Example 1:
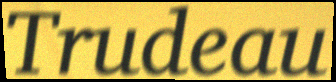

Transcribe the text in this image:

Trudeau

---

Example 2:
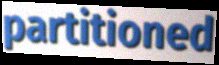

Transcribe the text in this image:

partitioned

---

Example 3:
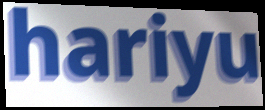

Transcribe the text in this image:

hariyu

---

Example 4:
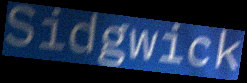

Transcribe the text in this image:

Sidgwick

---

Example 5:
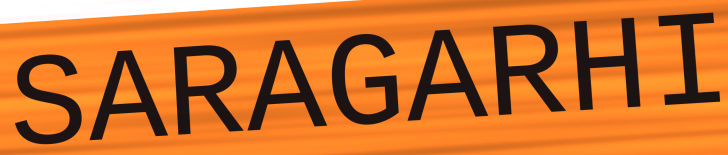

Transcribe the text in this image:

SARAGARHI